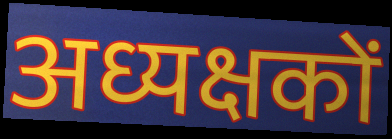
अध्यक्षकों